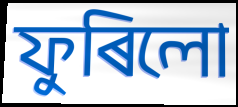
ফুৰিলো